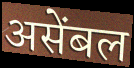
असेंबल